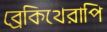
ব্রেকিথেরাপি